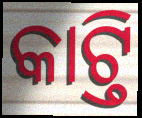
କାଟ୍ତି